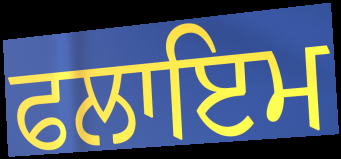
ਫਲਾਇਮ